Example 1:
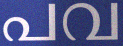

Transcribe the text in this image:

പവ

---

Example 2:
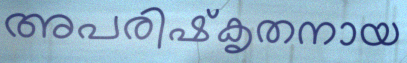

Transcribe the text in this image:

അപരിഷ്‌കൃതനായ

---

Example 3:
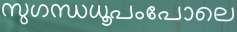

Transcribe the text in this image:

സുഗന്ധധൂപംപോലെ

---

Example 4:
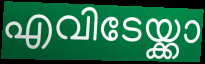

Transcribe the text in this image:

എവിടേയ്ക്കാ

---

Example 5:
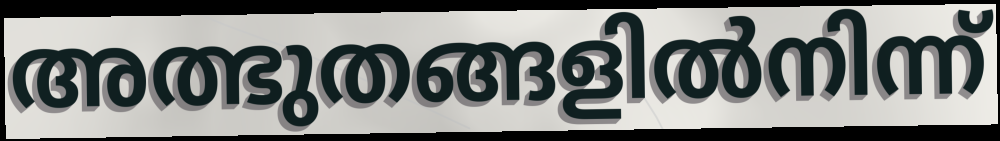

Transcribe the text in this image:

അത്ഭുതങ്ങളിൽനിന്ന്